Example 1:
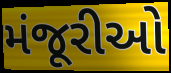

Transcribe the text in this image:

મંજૂરીઓ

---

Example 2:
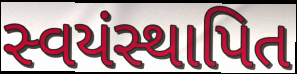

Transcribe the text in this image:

સ્વયંસ્થાપિત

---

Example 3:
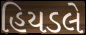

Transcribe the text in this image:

હિયડલે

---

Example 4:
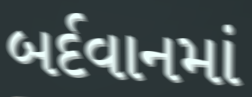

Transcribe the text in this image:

બર્દવાનમાં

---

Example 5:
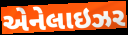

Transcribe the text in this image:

એનેલાઇઝર